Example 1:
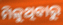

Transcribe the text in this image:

ମିଳୁଥିବାରୁ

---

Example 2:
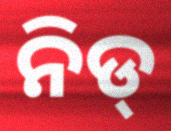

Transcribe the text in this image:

ନିଡ୍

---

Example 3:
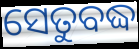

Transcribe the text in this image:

ସେତୁବଦ୍ଧ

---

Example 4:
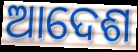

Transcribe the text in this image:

ଆଦେଶ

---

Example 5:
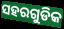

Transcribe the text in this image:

ସହରଗୁଡିକ